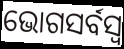
ଭୋଗସର୍ବସ୍ୱ